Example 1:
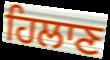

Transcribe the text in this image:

ਹਿਲਾਣ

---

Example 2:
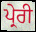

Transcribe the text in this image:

ਪ੍ਰੇਰੀ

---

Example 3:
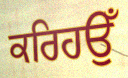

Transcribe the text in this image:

ਕਰਿਹਉਁ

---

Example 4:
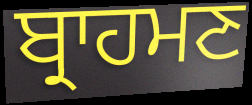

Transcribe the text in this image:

ਬ੍ਰਾਹਮਣ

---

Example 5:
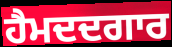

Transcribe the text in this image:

ਹੈਮਦਦਗਾਰ